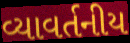
વ્યાવર્તનીય